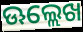
ଊଲ୍ଲେଖ